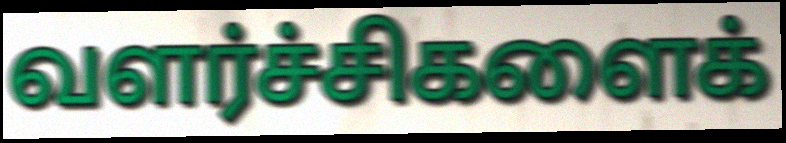
வளர்ச்சிகளைக்